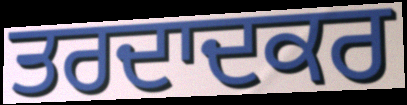
ਤਰਦਾਦਕਰ